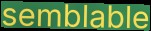
semblable